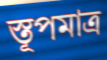
স্তূপমাত্র